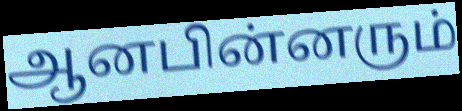
ஆனபின்னரும்